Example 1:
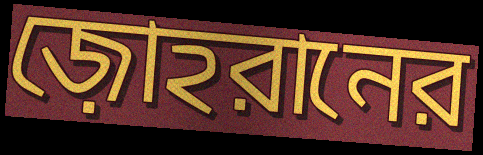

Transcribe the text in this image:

জ়োহরানের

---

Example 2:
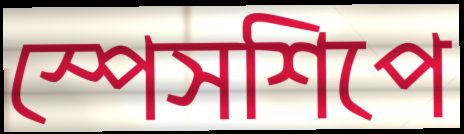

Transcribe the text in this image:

স্পেসশিপে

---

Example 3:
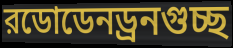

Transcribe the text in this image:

রডোডেনড্রনগুচ্ছ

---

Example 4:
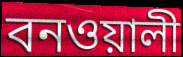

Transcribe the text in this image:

বনওয়ালী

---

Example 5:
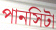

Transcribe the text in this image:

পানসিটা